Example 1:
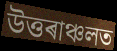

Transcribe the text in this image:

উত্তৰাঞ্চলত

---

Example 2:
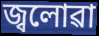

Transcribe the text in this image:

জ্বলোৱা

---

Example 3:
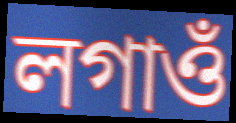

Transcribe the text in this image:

লগাওঁ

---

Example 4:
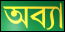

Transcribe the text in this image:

অব্যা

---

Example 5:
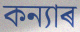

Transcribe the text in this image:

কন্যাৰ